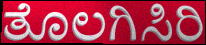
ತೊಲಗಿಸಿರಿ